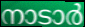
നാടാർ